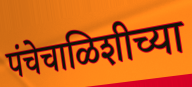
पंचेचाळिशीच्या